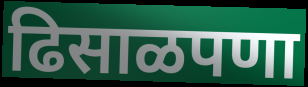
ढिसाळपणा